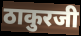
ठाकुरजी